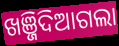
ଖଞ୍ଜିଦିଆଗଲା